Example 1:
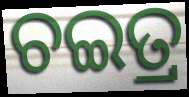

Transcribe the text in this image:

ଚଇତ୍ର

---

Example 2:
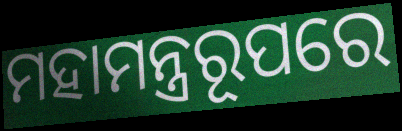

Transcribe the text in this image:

ମହାମନ୍ତ୍ରରୂପରେ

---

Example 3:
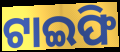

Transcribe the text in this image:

ଟାଇଫି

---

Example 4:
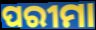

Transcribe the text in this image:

ପରୀମା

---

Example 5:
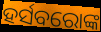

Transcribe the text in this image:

ହର୍ସବରୋଙ୍କ